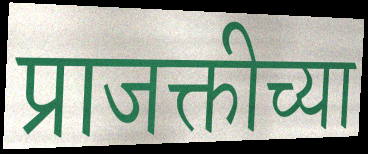
प्राजक्तीच्या